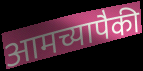
आमच्यापैकी